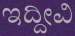
ಇದ್ದೀವಿ